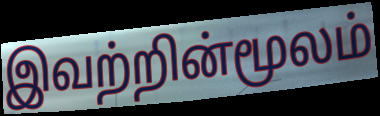
இவற்றின்மூலம்